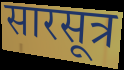
सारसूत्र